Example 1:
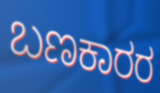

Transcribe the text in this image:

ಬಣಕಾರರ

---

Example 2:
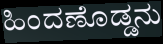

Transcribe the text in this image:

ಹಿಂದಣೊಡ್ಡನು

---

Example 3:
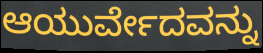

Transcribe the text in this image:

ಆಯುರ್ವೇದವನ್ನು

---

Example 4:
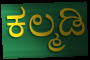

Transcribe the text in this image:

ಕಲ್ಮಡಿ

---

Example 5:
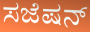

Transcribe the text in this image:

ಸಜೆಷನ್